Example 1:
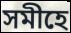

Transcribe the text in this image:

সমীহে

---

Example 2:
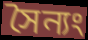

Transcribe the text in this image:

সৈন্যং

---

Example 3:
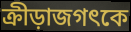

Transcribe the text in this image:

ক্রীড়াজগৎকে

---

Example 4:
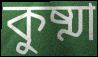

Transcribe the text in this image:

কুষ্মা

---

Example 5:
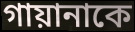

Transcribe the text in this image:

গায়ানাকে